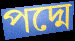
পদ্মে